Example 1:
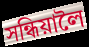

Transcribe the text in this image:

সন্ধিয়ালৈ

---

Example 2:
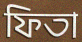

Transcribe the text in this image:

ফিতা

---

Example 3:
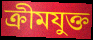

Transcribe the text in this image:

ক্ৰীমযুক্ত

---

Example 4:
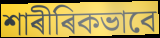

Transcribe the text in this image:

শাৰীৰিকভাবে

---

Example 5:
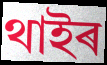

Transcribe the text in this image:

থাইৰ